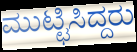
ಮುಟ್ಟಿಸಿದ್ದರು